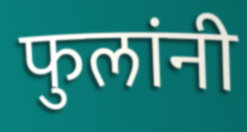
फुलांनी